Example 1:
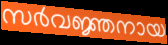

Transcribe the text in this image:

സർവജ്ഞനായ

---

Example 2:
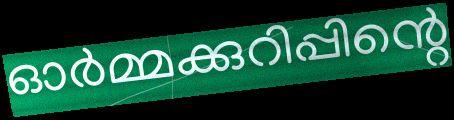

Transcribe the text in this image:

ഓർമ്മക്കുറിപ്പിന്റെ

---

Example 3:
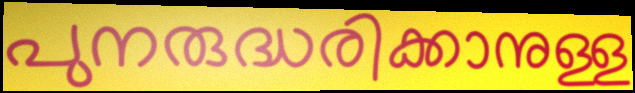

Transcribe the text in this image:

പുനരുദ്ധരിക്കാനുള്ള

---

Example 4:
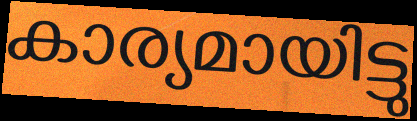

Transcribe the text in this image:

കാര്യമായിട്ടു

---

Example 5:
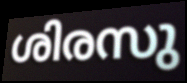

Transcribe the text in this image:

ശിരസു